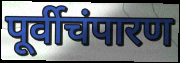
पूर्वीचंपारण